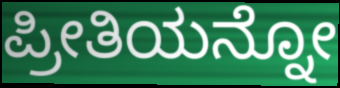
ಪ್ರೀತಿಯನ್ನೋ